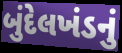
બુંદેલખંડનું